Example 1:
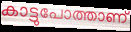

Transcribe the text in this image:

കാട്ടുപോത്താണ്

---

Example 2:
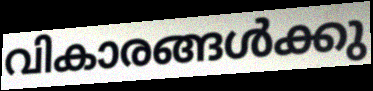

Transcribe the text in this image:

വികാരങ്ങൾക്കു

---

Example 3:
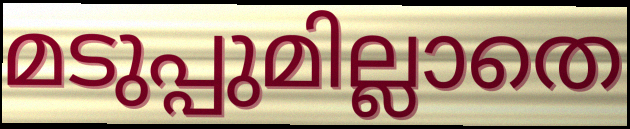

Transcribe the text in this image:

മടുപ്പുമില്ലാതെ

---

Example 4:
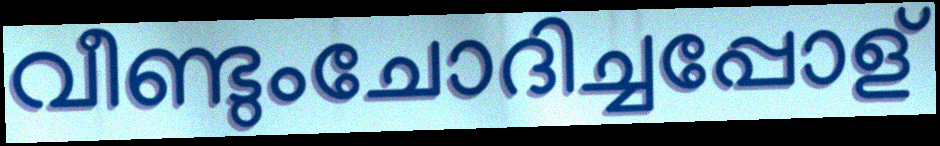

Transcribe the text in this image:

വീണ്ടുംചോദിച്ചപ്പോള്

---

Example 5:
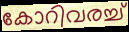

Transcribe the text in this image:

കോറിവരച്ച്